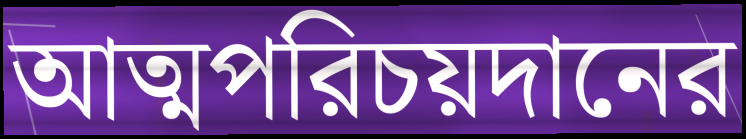
আত্মপরিচয়দানের